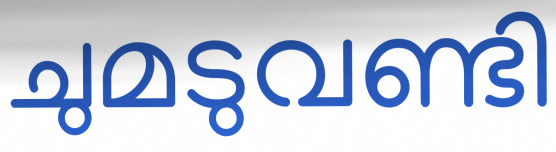
ചുമടുവണ്ടി